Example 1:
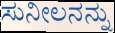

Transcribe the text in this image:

ಸುನೀಲನನ್ನು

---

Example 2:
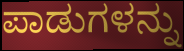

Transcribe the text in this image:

ಪಾಡುಗಳನ್ನು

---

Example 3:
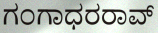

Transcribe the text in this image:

ಗಂಗಾಧರರಾವ್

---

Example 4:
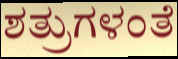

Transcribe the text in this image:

ಶತ್ರುಗಳಂತೆ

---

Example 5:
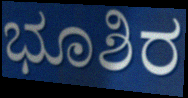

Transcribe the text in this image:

ಭೂಶಿರ